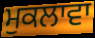
ਮੁਕਲਾਵਾ